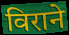
विराने